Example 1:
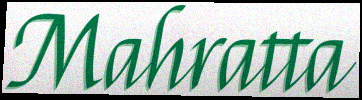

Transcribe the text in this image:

Mahratta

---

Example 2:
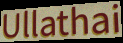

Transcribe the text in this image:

Ullathai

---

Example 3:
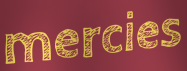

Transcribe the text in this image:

mercies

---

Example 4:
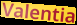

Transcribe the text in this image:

Valentia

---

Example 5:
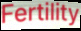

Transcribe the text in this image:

Fertility